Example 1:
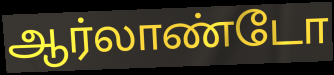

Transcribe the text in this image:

ஆர்லாண்டோ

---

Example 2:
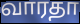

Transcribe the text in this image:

வாரதா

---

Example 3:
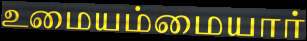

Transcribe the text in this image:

உமையம்மையார்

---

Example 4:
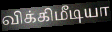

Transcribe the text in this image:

விக்கிமீடியா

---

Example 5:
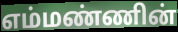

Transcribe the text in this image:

எம்மண்ணின்